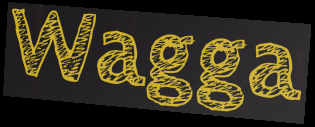
Wagga